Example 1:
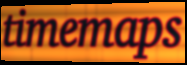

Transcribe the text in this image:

timemaps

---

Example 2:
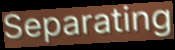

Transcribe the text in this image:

Separating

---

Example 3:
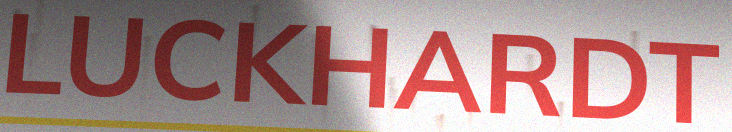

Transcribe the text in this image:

LUCKHARDT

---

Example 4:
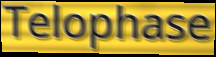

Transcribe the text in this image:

Telophase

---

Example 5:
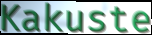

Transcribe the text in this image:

Kakuste